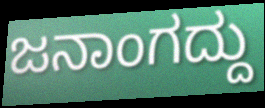
ಜನಾಂಗದ್ದು